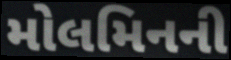
મોલમિનની